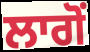
ਲਾਗੋਂ